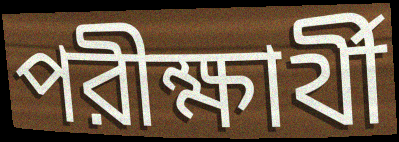
পরীক্ষার্থী